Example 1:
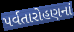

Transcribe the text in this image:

પર્વતારોહણનાં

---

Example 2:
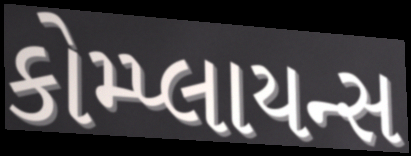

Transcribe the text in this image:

કોમ્પ્લાયન્સ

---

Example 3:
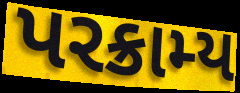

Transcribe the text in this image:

પરક્રામ્ય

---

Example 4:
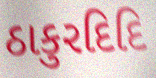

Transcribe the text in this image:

ઠાકુરદિદિ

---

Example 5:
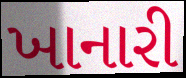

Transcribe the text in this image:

ખાનારી